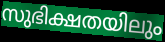
സുഭിക്ഷതയിലും